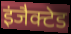
इंजैक्टेड